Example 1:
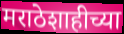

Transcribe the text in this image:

मराठेशाहीच्या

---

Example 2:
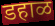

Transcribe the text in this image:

डहाळ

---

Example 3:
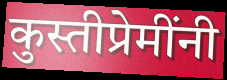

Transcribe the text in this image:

कुस्तीप्रेमींनी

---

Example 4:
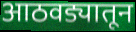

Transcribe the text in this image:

आठवड्यातून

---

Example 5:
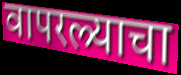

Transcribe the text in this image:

वापरल्याचा